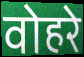
वोहरे